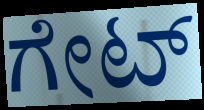
ಗೇಟ್